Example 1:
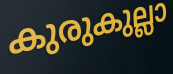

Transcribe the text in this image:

കുരുകുല്ലാ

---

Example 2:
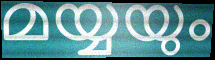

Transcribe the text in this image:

മയ്യയും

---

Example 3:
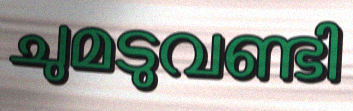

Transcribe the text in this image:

ചുമടുവണ്ടി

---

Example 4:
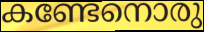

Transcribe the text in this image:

കണ്ടേനൊരു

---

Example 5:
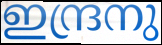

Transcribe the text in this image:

ഇന്ദ്രനു